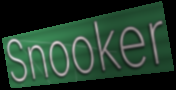
Snooker